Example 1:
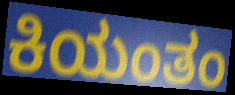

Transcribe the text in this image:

ಕಿಯಂತಂ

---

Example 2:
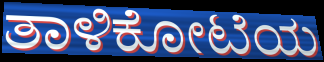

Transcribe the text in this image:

ತಾಳಿಕೋಟೆಯ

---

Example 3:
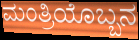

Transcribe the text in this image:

ಮಂತ್ರಿಯೊಬ್ಬನ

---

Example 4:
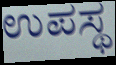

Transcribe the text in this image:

ಉಪಸ್ಥ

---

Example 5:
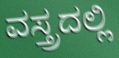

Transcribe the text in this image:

ವಸ್ತ್ರದಲ್ಲಿ